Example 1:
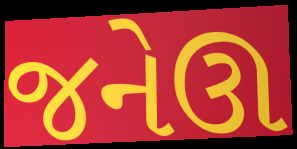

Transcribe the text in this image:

જનેઊ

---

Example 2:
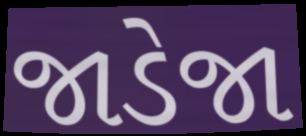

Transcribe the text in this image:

જાડેજા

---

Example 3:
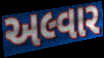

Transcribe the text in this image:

અલ્વાર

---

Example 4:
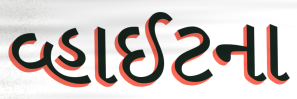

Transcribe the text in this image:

વ્હાઈટના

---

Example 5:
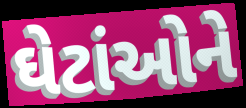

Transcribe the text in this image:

ઘેટાંઓને